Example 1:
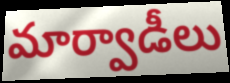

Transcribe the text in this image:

మార్వాడీలు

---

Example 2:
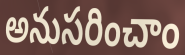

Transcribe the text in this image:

అనుసరించాం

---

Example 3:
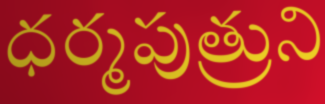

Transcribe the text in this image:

ధర్మపుత్రుని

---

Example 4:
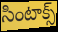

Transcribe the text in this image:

సింటాక్స్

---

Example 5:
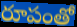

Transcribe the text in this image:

రూపంతో